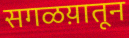
सगळय़ातून